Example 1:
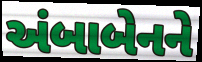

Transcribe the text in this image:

અંબાબેનને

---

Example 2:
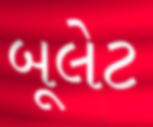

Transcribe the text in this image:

બૂલેટ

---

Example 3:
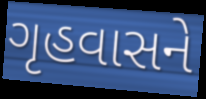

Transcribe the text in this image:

ગૃહવાસને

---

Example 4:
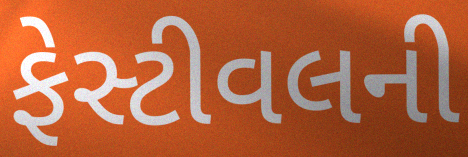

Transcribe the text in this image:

ફેસ્ટીવલની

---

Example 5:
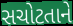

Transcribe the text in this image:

સચોટતાને